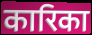
कारिका